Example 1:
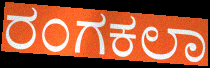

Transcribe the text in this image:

ರಂಗಕಲಾ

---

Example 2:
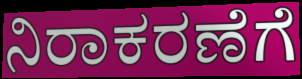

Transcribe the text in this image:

ನಿರಾಕರಣೆಗೆ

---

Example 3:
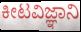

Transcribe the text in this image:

ಕೀಟವಿಜ್ಞಾನಿ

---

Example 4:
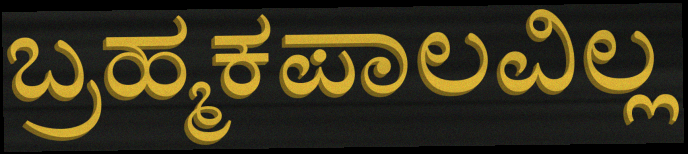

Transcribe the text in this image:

ಬ್ರಹ್ಮಕಪಾಲವಿಲ್ಲ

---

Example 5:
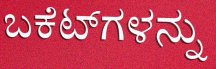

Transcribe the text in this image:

ಬಕೆಟ್‌ಗಳನ್ನು